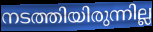
നടത്തിയിരുന്നില്ല